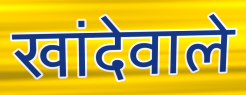
खांदेवाले